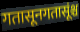
गतासूनगतासूंश्च